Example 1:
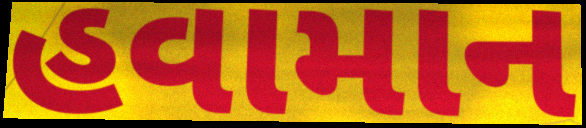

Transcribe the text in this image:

હવામાન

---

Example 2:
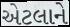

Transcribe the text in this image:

એટલાને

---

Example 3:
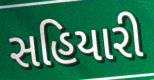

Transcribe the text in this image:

સહિયારી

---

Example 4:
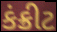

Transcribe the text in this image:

કંક્રીટ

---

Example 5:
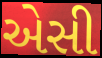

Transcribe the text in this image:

એસી